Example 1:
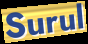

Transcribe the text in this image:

Surul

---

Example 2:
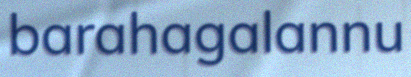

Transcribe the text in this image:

barahagalannu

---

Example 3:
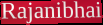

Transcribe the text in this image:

Rajanibhai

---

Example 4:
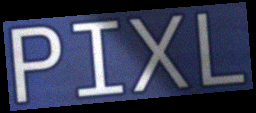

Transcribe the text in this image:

PIXL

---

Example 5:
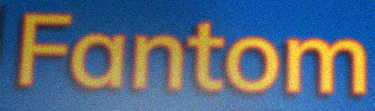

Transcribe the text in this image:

Fantom